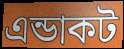
এন্ডাকট